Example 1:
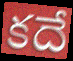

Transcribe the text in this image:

కదే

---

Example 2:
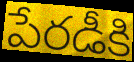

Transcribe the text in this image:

పేరడీకి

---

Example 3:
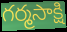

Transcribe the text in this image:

గర్మసాక్షి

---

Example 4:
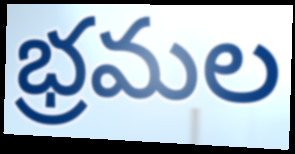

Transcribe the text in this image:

భ్రమల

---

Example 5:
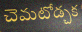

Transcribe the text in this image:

చెమటోడ్చక